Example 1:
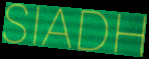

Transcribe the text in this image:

SIADH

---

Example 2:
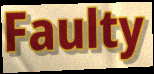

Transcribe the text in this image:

Faulty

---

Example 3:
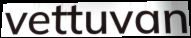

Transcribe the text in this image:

vettuvan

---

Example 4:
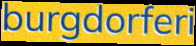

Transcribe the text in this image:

burgdorferi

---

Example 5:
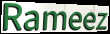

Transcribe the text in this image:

Rameez